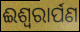
ଈଶ୍ୱରାର୍ପଣ